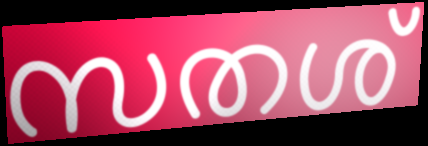
സതശ്